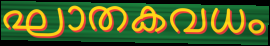
ഘാതകവധം